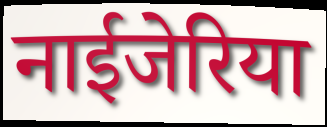
नाईजेरिया